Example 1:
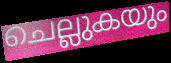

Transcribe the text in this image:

ചെല്ലുകയും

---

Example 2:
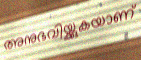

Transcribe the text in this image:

അനുഭവിയ്ക്കുകയാണ്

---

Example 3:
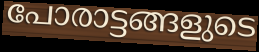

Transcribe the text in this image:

പോരാട്ടങ്ങളുടെ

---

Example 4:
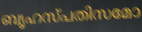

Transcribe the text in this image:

ബൃഹസ്പതിസമോ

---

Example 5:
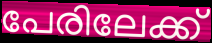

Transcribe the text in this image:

പേരിലേക്ക്